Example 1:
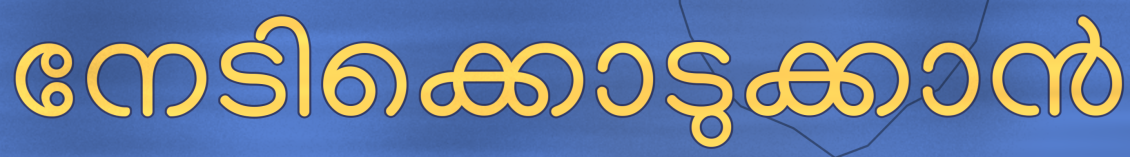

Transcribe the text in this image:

നേടിക്കൊടുക്കാൻ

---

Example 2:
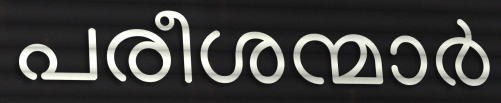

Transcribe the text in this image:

പരീശന്മാർ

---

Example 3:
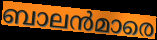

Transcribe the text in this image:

ബാലൻമാരെ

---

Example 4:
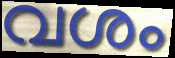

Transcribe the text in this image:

വശം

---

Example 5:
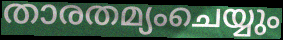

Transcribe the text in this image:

താരതമ്യംചെയ്യും